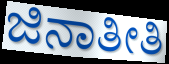
ಜಿನಾತೀತಿ